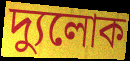
দ্যুলোক